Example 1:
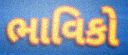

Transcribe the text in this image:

ભાવિકો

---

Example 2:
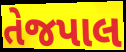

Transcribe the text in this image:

તેજપાલ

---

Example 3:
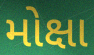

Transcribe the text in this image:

મોક્ષા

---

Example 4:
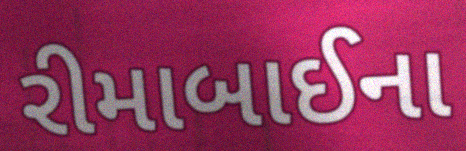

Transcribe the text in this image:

રીમાબાઈના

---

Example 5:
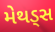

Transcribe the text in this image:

મેથડ્સ